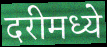
दरीमध्ये